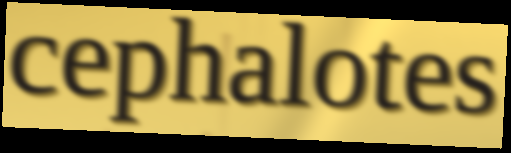
cephalotes